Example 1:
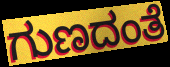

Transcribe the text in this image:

ಗುಣದಂತೆ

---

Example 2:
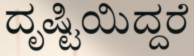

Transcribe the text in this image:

ದೃಷ್ಟಿಯಿದ್ದರೆ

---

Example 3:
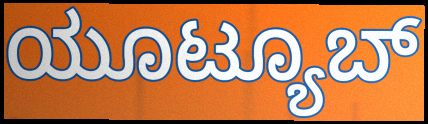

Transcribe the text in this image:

ಯೂಟ್ಯೂಬ್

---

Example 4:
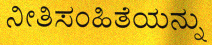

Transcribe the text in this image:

ನೀತಿಸಂಹಿತೆಯನ್ನು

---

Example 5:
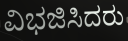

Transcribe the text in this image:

ವಿಭಜಿಸಿದರು